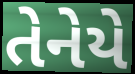
તેનેયે